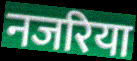
नजरिया